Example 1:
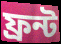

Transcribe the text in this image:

ফ্ৰন্ট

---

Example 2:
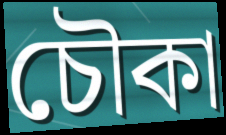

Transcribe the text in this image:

চৌকা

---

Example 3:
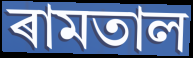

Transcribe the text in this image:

ৰামতাল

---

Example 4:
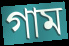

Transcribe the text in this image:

গাম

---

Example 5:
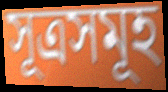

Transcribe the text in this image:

সূত্ৰসমূহ